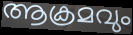
ആക്രമവും